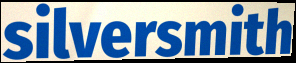
silversmith